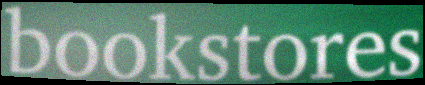
bookstores